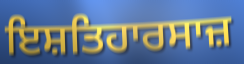
ਇਸ਼ਤਿਹਾਰਸਾਜ਼